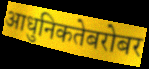
आधुनिकतेबरोबर